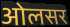
ओलसर